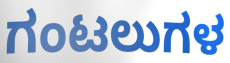
ಗಂಟಲುಗಳ